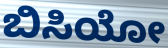
ಬಿಸಿಯೋ